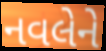
નવલેને